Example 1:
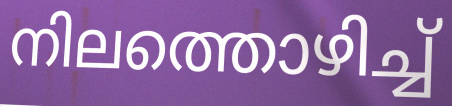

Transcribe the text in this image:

നിലത്തൊഴിച്ച്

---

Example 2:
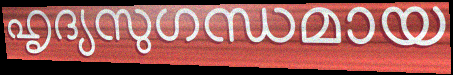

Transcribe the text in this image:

ഹൃദ്യസുഗന്ധമായ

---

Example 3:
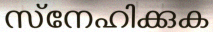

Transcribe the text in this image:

സ്‌നേഹിക്കുക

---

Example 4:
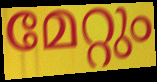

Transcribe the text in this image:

മേറ്റും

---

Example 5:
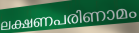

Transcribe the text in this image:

ലക്ഷണപരിണാമം